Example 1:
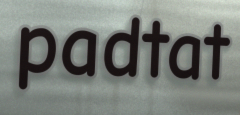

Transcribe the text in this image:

padtat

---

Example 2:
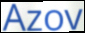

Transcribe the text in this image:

Azov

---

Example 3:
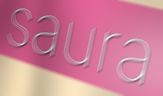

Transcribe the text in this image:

saura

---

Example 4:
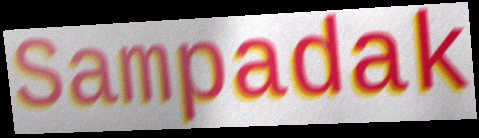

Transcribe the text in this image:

Sampadak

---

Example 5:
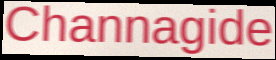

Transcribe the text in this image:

Channagide